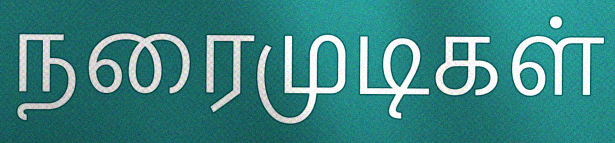
நரைமுடிகள்